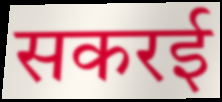
सकरई